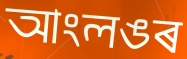
আংলঙৰ